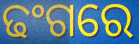
ଢଂଗରେ